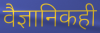
वैज्ञानिकही